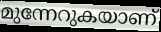
മുന്നേറുകയാണ്